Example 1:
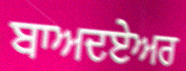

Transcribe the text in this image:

ਬਾਅਦਏਅਰ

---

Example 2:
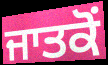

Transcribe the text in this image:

ਜਾਤਕੋਂ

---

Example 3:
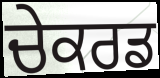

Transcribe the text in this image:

ਚੇਕਰਡ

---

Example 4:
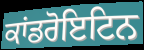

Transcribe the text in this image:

ਕਾਂਡਰੋਇਟਿਨ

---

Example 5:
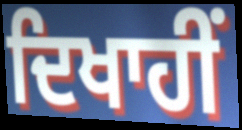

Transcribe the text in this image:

ਦਿਖਾਹੀਂ